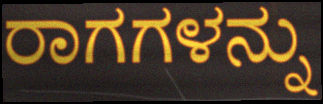
ರಾಗಗಳನ್ನು